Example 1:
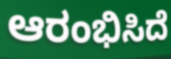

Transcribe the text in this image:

ಆರಂಭಿಸಿದೆ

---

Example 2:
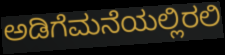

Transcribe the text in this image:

ಅಡಿಗೆಮನೆಯಲ್ಲಿರಲಿ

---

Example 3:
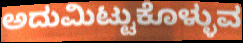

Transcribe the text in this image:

ಅದುಮಿಟ್ಟುಕೊಳ್ಳುವ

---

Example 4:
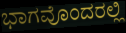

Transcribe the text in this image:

ಭಾಗವೊಂದರಲ್ಲಿ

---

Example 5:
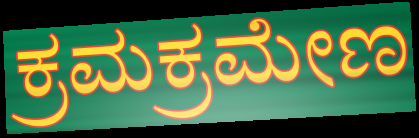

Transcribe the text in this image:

ಕ್ರಮಕ್ರಮೇಣ